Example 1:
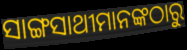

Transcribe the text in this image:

ସାଙ୍ଗସାଥୀମାନଙ୍କଠାରୁ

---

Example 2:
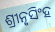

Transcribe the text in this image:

ଶ୍ରୀନୃସିଂହ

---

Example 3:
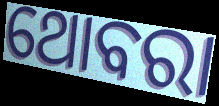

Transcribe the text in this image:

ଥୋବରା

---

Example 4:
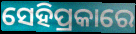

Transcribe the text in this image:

ସେହିପ୍ରକାରେ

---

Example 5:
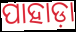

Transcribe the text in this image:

ପାହାଡ଼ା